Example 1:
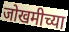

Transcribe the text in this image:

जोखमीच्या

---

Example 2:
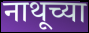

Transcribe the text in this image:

नाथूच्या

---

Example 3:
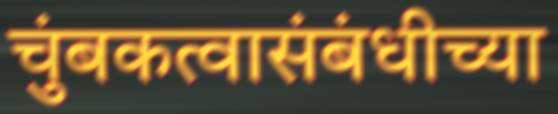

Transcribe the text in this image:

चुंबकत्वासंबंधीच्या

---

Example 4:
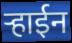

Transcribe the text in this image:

ऱ्हाईन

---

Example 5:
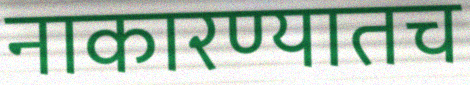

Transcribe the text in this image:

नाकारण्यातच